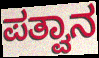
ಪತ್ವಾನ